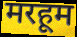
मरहूम